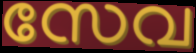
സേവ